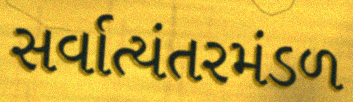
સર્વાત્યંતરમંડળ